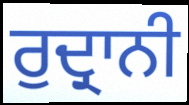
ਰੁਦ੍ਰਾਨੀ